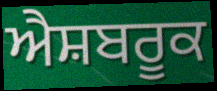
ਐਸ਼ਬਰੂਕ